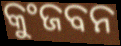
କୁଂଜବନ